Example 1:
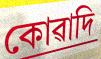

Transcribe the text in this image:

কোৱাদি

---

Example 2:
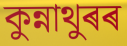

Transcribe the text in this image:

কুন্নাথুৰৰ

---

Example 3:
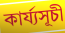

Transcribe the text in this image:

কাৰ্য্যসূচী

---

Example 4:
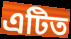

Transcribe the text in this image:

এটিত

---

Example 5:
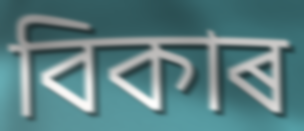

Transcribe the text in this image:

বিকাৰ